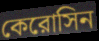
কেরোসিন